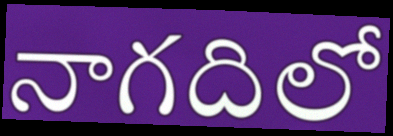
నాగదిలో